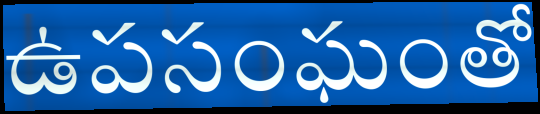
ఉపసంఘంతో